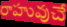
రాహువుచే